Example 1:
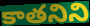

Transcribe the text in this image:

కాతనిని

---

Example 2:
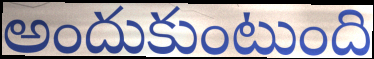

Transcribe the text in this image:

అందుకుంటుంది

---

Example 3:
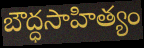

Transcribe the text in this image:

బౌద్ధసాహిత్యం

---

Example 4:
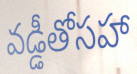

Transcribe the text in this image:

వడ్డీతోసహా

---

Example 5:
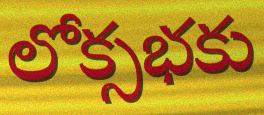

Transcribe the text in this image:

లోక్సభకు